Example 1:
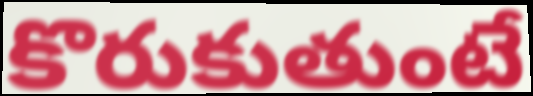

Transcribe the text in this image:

కొరుకుతుంటే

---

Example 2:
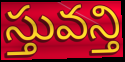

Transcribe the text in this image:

స్తువన్తి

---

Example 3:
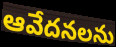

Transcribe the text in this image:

ఆవేదనలను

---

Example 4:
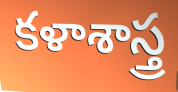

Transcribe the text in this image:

కళాశాస్త్ర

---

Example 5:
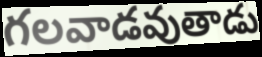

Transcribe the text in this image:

గలవాడవుతాడు